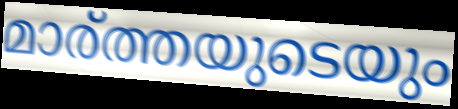
മാര്ത്തയുടെയും